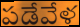
పడేవేళ